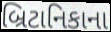
બ્રિટાનિકાના